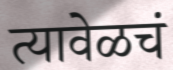
त्यावेळचं